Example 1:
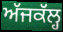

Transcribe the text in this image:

ਅੱਜਕੱਲ੍ਹ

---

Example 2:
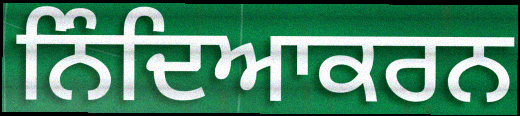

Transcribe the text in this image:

ਨਿੰਦਿਆਕਰਨ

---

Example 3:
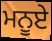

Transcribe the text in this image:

ਮਨੂਏ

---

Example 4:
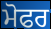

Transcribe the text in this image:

ਮੋਫਰ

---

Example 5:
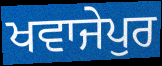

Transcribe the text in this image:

ਖਵਾਜੇਪੁਰ